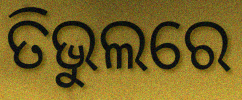
ତିଭୁଲରେ